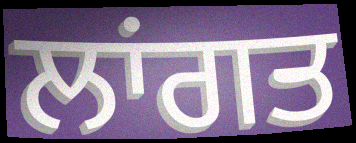
ਲਾਂਗਤ